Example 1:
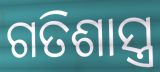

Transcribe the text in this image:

ଗତିଶାସ୍ତ୍ର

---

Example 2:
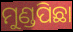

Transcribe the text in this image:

ମୁଣ୍ଡପିଛା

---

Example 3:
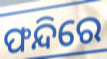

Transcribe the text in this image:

ଫନ୍ଦିରେ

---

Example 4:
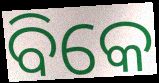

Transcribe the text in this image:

ବିକେ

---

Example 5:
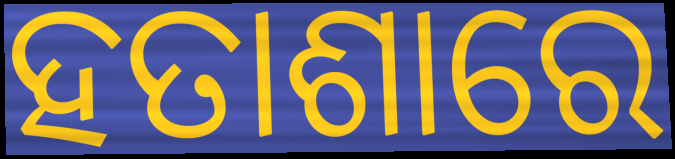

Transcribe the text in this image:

ହତାଶାରେ